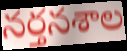
నర్తనశాల